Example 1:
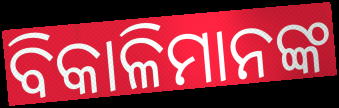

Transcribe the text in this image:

ବିକାଳିମାନଙ୍କ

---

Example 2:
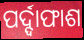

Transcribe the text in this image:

ପର୍ଦ୍ଦାଫାଶ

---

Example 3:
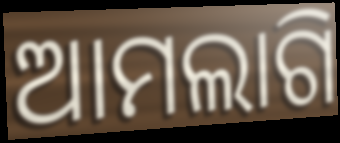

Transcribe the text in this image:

ଆମଲାଗି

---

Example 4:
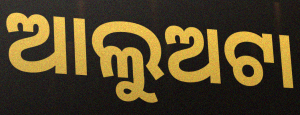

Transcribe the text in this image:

ଆଲୁଅଟା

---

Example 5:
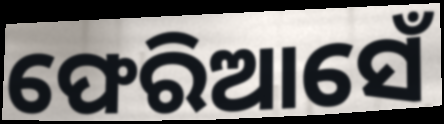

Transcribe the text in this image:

ଫେରିଆସେଁ